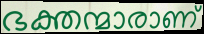
ഭക്തന്മാരാണ്